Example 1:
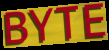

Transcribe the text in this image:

BYTE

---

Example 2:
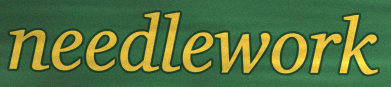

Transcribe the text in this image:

needlework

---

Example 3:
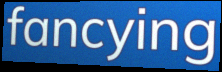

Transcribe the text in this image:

fancying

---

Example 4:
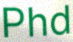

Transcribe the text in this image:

Phd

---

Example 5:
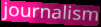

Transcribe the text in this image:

journalism